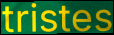
tristes